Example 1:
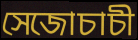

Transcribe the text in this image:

সেজোচাচী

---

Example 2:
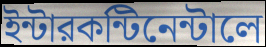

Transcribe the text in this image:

ইন্টারকন্টিনেন্টালে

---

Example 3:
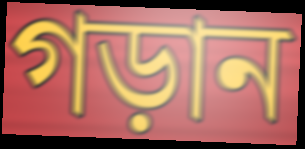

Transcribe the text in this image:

গড়ান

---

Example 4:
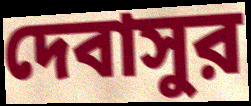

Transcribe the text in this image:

দেবাসুর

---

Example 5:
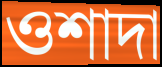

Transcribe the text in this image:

ওশাদা